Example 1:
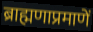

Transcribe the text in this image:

ब्राह्मणाप्रमाणें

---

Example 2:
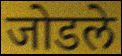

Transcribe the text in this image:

जोडले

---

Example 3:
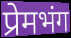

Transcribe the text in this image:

प्रेमभंग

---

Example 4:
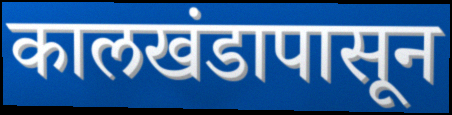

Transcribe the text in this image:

कालखंडापासून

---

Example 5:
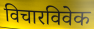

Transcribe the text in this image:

विचारविवेक